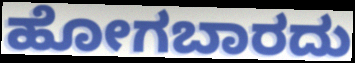
ಹೋಗಬಾರದು